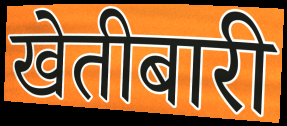
खेतीबारी